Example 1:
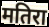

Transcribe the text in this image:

मतिरा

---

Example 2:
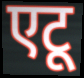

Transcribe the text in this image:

एटू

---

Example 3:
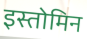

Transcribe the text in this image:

इस्तोमिन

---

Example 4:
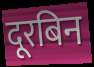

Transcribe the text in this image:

दूरबिन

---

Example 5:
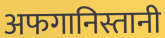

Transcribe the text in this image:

अफगानिस्तानी